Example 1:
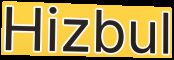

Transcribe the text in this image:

Hizbul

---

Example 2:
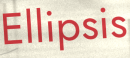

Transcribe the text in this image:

Ellipsis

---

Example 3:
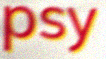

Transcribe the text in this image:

psy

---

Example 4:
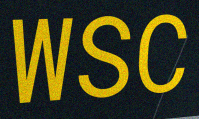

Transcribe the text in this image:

WSC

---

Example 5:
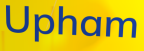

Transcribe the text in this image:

Upham